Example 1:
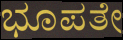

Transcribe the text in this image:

ಭೂಪತೇ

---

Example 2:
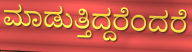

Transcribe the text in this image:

ಮಾಡುತ್ತಿದ್ದರೆಂದರೆ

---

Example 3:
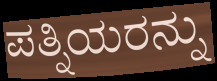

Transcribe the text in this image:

ಪತ್ನಿಯರನ್ನು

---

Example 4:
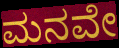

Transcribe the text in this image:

ಮನವೇ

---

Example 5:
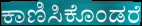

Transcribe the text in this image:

ಕಾಣಿಸಿಕೊಂಡರೆ